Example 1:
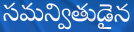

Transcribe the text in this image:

సమన్వితుడైన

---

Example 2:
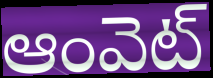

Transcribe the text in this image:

ఆంవెట్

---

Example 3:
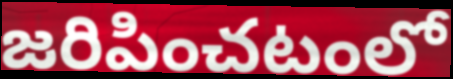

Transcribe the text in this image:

జరిపించటంలో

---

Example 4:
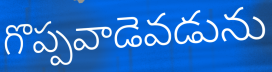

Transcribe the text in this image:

గొప్పవాడెవడును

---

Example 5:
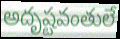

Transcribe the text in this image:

అదృష్టవంతులే